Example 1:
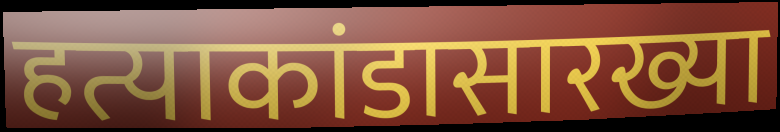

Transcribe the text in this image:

हत्याकांडासारख्या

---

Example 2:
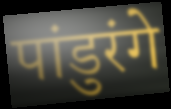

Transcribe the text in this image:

पांडुरंगे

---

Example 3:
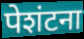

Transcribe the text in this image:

पेशंटना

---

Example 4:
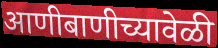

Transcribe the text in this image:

आणीबाणीच्यावेळी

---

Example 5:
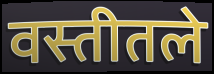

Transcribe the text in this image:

वस्तीतले